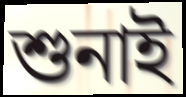
শুনাই